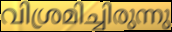
വിശ്രമിച്ചിരുന്നു